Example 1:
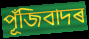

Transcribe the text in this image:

পূঁজিবাদৰ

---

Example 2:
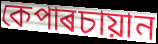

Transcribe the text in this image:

কেপাৰচায়ান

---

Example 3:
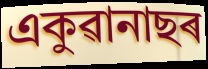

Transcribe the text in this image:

একুৱানাছৰ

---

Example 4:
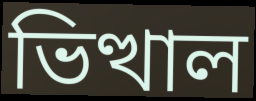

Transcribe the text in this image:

ভিত্থাল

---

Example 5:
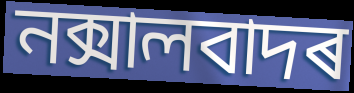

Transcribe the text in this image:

নক্সালবাদৰ